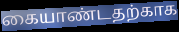
கையாண்டதற்காக